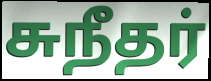
சுநீதர்